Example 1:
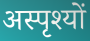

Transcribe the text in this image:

अस्पृश्यों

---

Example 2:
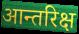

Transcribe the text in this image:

आन्तरिक्ष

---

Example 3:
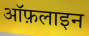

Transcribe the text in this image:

ऑफ़लाइन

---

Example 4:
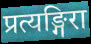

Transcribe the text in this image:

प्रत्यङ्गिरा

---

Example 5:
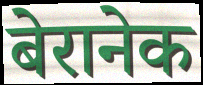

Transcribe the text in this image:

बेरानेक